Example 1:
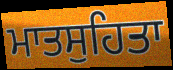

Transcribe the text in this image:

ਮਾਤਸੁਹਿਤਾ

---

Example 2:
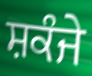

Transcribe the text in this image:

ਸ਼ਕੰਜੇ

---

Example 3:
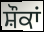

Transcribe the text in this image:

ਸ਼ੌਕਾਂ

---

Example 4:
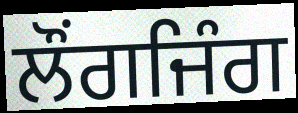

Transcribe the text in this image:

ਲੌਂਗਜਿੰਗ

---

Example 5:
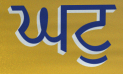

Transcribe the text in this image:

ਘਟੁ